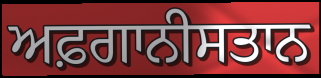
ਅਫ਼ਗਾਨੀਸਤਾਨ